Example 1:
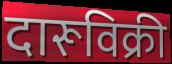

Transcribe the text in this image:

दारूविक्री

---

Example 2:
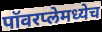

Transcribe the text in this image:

पॉवरप्लेमध्येच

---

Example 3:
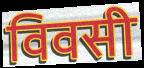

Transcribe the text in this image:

विवसी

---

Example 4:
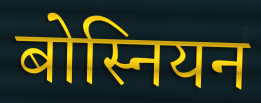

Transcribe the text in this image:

बोस्नियन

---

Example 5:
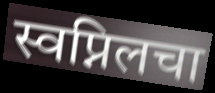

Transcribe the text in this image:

स्वप्निलचा